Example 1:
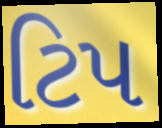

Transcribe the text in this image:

ટિપ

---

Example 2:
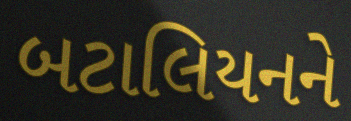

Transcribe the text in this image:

બટાલિયનને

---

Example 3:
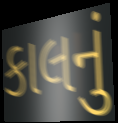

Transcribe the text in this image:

કાલનું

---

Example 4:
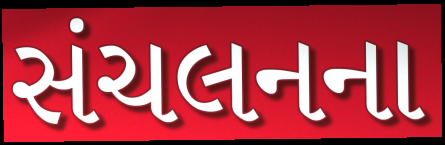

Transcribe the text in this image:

સંચલનના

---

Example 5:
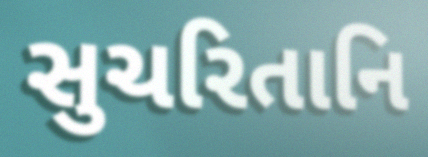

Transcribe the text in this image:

સુચરિતાનિ